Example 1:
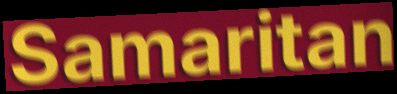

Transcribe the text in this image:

Samaritan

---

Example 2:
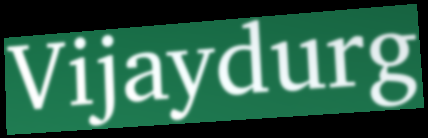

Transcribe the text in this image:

Vijaydurg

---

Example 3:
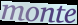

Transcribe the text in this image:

monte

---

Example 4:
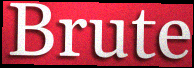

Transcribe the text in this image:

Brute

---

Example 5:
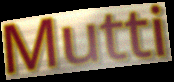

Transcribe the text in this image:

Mutti